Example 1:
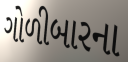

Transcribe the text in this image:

ગોળીબારના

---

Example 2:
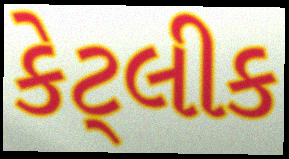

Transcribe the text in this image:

કેટ્લીક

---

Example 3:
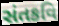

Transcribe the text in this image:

સંતકવિ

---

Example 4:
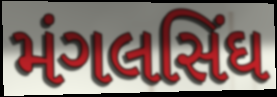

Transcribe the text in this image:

મંગલસિંઘ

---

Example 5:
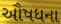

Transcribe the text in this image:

ઔષધના